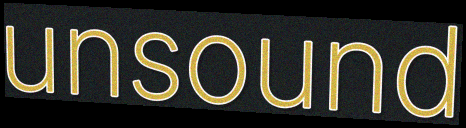
unsound